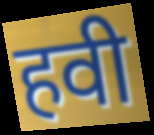
हवी